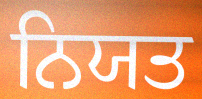
ਨਿਯਤ